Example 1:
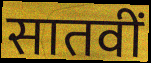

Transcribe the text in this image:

सातवीं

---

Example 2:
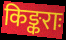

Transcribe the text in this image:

किङ्कराः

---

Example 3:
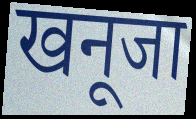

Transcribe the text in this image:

खनूजा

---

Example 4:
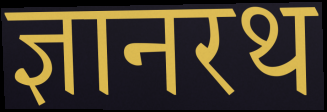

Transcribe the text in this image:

ज्ञानरथ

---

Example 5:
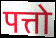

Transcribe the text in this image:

पत्तो